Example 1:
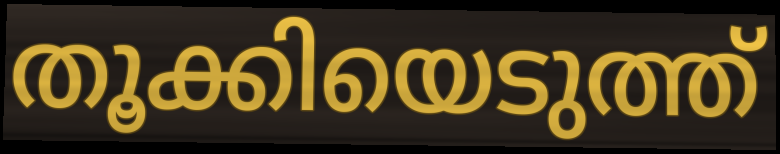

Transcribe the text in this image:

തൂക്കിയെടുത്ത്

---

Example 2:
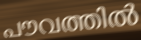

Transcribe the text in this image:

പൗവത്തിൽ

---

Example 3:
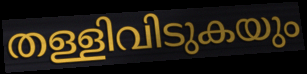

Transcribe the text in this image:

തള്ളിവിടുകയും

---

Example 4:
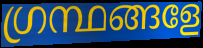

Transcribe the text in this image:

ഗ്രന്ഥങ്ങളേ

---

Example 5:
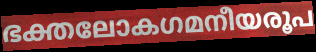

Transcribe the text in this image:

ഭക്തലോകഗമനീയരൂപ